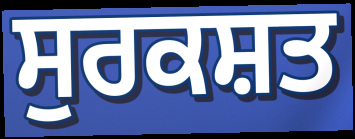
ਸੁਰਕਸ਼ਤ